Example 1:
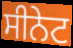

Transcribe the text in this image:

ਸੀਨੇਟ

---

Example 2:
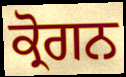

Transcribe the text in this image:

ਕ੍ਰੋਗਨ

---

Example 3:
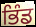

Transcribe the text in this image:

ਭਿੰਡ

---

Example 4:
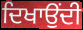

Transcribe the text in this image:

ਦਿਖਾਉਂਦੀ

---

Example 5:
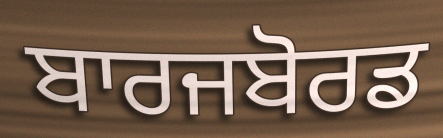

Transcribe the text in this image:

ਬਾਰਜਬੋਰਡ